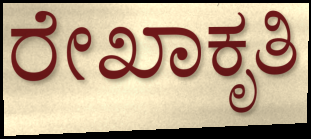
ರೇಖಾಕೃತಿ